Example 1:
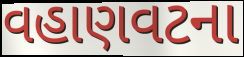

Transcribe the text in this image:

વહાણવટના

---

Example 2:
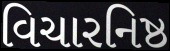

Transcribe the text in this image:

વિચારનિષ્ઠ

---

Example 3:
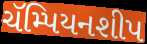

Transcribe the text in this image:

ચૅમ્પિયનશીપ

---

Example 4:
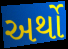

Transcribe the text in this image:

અર્થો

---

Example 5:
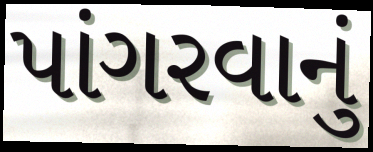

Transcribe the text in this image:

પાંગરવાનું